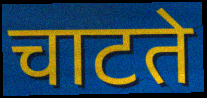
चाटते